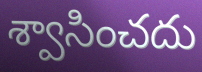
శ్వాసించదు